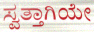
ಸ್ವತ್ತಾಗಿಯೇ